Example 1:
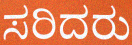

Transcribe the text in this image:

ಸರಿದರು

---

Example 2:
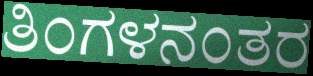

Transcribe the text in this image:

ತಿಂಗಳನಂತರ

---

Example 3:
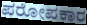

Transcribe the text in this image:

ಪರೋಪಕಾರ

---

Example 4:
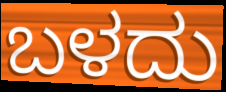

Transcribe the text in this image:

ಬಳದು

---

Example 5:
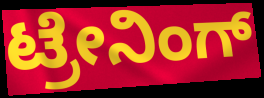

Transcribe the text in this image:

ಟ್ರೇನಿಂಗ್